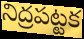
నిద్రపట్టక